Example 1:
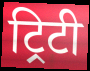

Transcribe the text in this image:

ट्रिटी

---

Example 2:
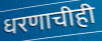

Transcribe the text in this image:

धरणाचीही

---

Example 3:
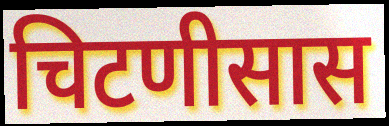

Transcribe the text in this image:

चिटणीसास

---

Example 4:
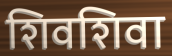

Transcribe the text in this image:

शिवशिवा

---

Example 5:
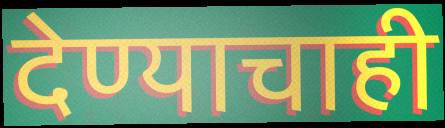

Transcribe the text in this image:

देण्याचाही